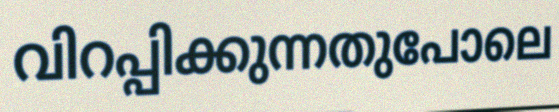
വിറപ്പിക്കുന്നതുപോലെ